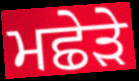
ਮਛੇੜੇ